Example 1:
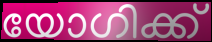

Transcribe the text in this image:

യോഗിക്ക്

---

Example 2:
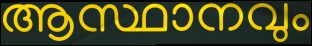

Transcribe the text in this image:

ആസ്ഥാനവും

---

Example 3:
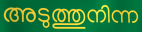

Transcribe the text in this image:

അടുത്തുനിന്ന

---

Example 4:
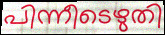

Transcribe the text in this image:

പിന്നീടെഴുതി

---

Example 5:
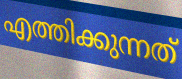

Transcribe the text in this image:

എത്തിക്കുന്നത്